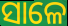
ସାଳେ